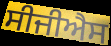
ਸੀਜੀਐਸ